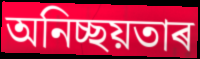
অনিচ্ছয়তাৰ